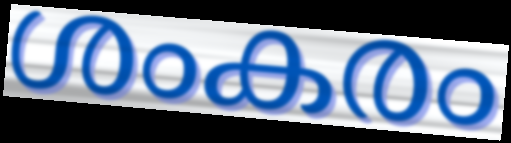
ശംകരം